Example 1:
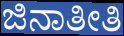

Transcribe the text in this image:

ಜಿನಾತೀತಿ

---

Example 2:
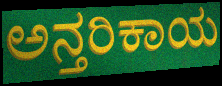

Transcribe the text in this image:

ಅನ್ತರಿಕಾಯ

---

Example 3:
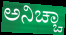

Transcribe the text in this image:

ಅನಿಚ್ಚಾ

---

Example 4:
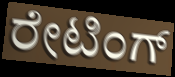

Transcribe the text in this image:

ರೇಟಿಂಗ್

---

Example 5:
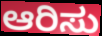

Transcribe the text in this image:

ಆರಿಸು